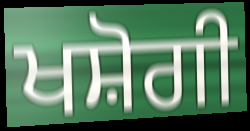
ਖਸ਼ੋਗੀ